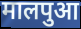
मालपुआ